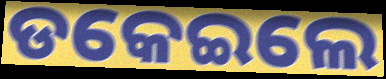
ଡକେଇଲେ